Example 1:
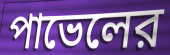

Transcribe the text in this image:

পাভেলের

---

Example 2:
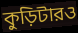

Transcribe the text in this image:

কুড়িটারও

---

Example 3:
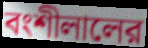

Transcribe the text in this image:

বংশীলালের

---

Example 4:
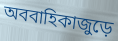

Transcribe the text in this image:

অববাহিকাজুড়ে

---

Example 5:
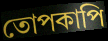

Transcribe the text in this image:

তোপকাপি